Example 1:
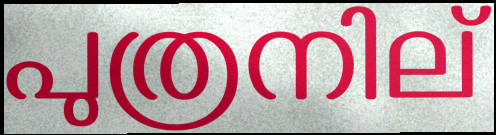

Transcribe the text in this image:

പുത്രനില്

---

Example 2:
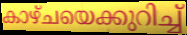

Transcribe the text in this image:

കാഴ്ചയെക്കുറിച്ച്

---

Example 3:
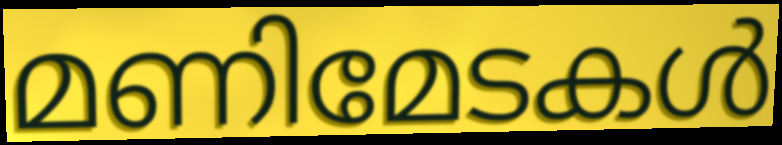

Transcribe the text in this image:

മണിമേടകൾ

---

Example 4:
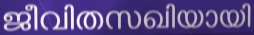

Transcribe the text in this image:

ജീവിതസഖിയായി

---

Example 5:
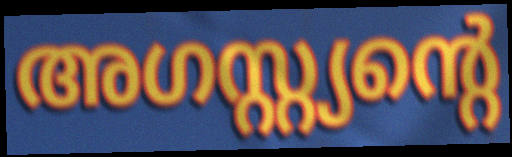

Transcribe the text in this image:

അഗസ്റ്റ്യന്റെ